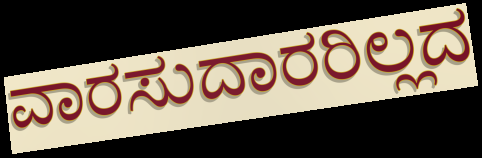
ವಾರಸುದಾರರಿಲ್ಲದ